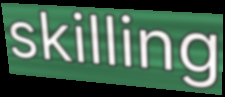
skilling